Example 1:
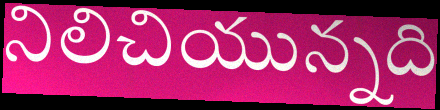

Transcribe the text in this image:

నిలిచియున్నది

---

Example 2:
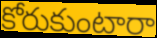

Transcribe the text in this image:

కోరుకుంటారా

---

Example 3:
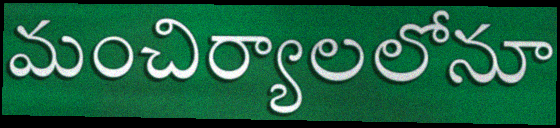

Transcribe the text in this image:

మంచిర్యాలలోనూ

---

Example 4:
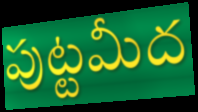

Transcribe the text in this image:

పుట్టమీద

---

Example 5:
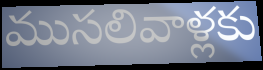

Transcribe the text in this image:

ముసలివాళ్లకు